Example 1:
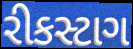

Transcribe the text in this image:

રીકસ્ટાગ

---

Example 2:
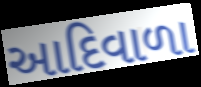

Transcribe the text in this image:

આદિવાળા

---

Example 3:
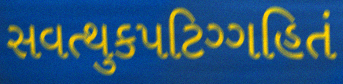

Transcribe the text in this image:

સવત્થુકપટિગ્ગહિતં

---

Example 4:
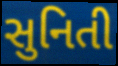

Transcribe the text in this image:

સુનિતી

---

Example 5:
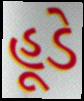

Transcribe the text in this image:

હૂડે